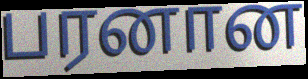
பரனான